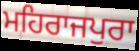
ਮਹਿਰਾਜਪੁਰਾ